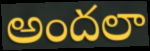
అందలా